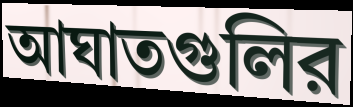
আঘাতগুলির